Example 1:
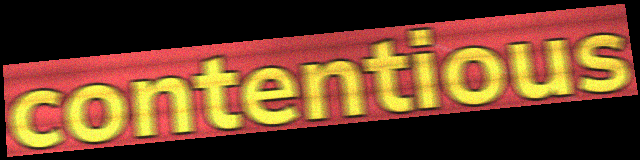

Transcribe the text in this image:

contentious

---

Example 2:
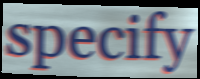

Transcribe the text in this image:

specify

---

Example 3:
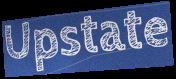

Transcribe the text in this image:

Upstate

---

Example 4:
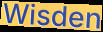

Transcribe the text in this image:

Wisden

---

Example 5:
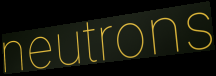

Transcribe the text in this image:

neutrons